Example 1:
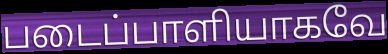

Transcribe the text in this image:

படைப்பாளியாகவே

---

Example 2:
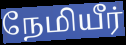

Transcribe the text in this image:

நேமியீர்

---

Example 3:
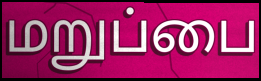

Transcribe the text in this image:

மறுப்பை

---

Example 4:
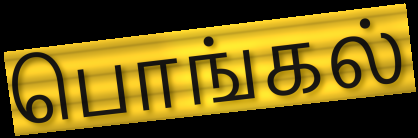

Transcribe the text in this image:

பொங்கல்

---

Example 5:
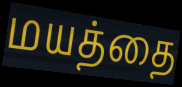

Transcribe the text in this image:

மயத்தை